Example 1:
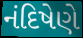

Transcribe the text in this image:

નંદિષેણે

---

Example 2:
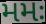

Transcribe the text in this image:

મમઃ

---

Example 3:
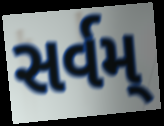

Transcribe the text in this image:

સર્વમ્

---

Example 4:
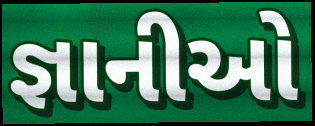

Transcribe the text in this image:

જ્ઞાનીઓ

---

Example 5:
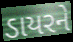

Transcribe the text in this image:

ડાયરને